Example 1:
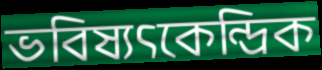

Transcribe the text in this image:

ভবিষ্যৎকেন্দ্রিক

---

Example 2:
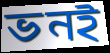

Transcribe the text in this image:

ভনই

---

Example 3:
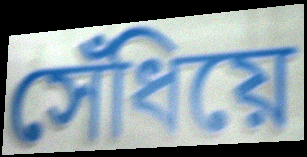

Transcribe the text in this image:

সেঁধিয়ে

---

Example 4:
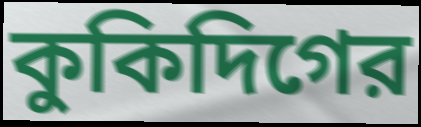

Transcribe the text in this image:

কুকিদিগের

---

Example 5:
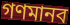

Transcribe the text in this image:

গণমানব